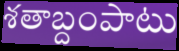
శతాబ్దంపాటు